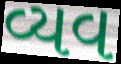
વ્યવ